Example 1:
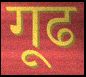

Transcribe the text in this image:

गूढ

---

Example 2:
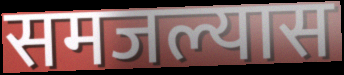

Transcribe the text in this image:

समजल्यास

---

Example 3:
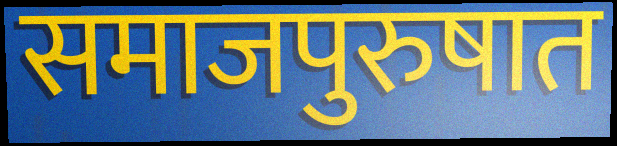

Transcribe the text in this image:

समाजपुरुषात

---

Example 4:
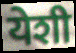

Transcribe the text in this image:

येशी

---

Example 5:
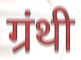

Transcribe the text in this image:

ग्रंथी